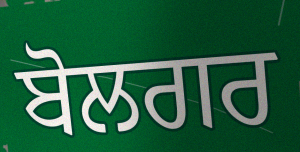
ਬੋਲਗਰ